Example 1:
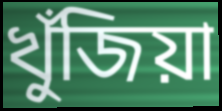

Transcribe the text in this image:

খুঁজিয়া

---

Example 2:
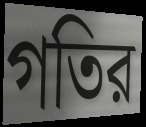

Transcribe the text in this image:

গতির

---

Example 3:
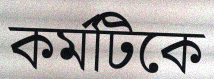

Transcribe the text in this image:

কর্মটিকে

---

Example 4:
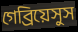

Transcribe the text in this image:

গেব্রিয়েসুস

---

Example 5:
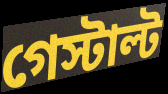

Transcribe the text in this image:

গেস্টাল্ট